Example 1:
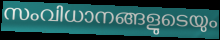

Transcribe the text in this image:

സംവിധാനങ്ങളുടെയും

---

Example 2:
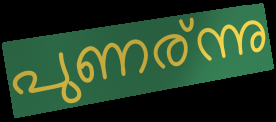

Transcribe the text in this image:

പുണര്ന്നു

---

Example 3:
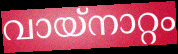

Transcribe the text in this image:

വായ്നാറ്റം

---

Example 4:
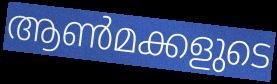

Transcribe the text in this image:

ആൺമക്കളുടെ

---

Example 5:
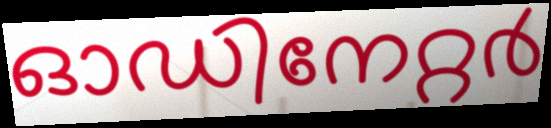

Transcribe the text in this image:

ഓഡിനേറ്റർ